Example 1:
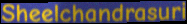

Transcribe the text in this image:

Sheelchandrasuri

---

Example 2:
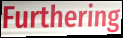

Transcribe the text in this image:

Furthering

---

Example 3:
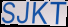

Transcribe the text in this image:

SJKT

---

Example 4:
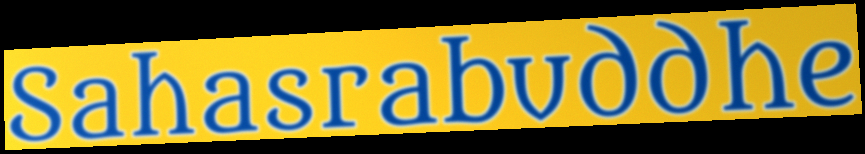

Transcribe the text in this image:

Sahasrabuddhe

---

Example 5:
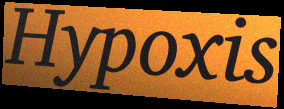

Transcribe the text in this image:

Hypoxis